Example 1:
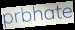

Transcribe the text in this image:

prbhate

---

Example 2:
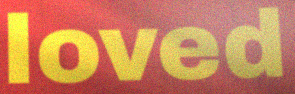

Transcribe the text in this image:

loved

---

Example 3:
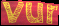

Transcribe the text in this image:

vur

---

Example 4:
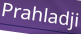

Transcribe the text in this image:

Prahladji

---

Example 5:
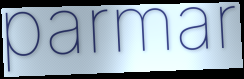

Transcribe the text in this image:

parmar